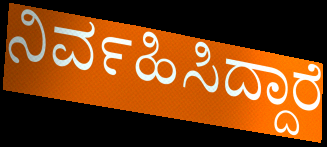
ನಿರ್ವಹಿಸಿದ್ದಾರೆ